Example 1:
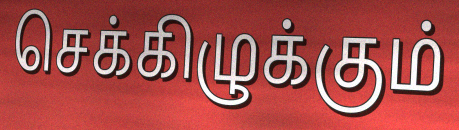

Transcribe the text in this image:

செக்கிழுக்கும்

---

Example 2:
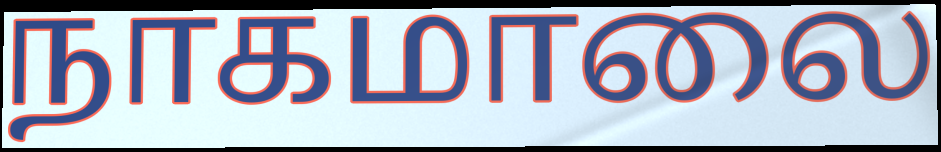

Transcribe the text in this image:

நாகமாலை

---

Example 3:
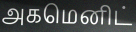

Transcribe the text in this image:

அகமெனிட்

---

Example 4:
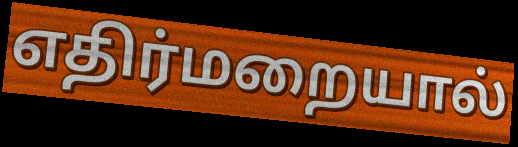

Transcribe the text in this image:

எதிர்மறையால்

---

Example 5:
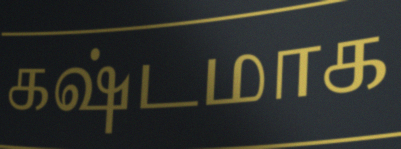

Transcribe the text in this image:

கஷ்டமாக